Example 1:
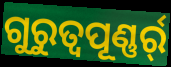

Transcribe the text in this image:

ଗୁରୁତ୍ୱପୂଣ୍ଣର୍ର୍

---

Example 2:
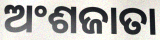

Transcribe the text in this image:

ଅଂଶଜାତା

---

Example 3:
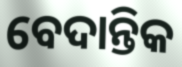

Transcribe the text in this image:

ବେଦାନ୍ତିକ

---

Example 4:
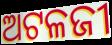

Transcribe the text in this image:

ଅଟଳଜୀ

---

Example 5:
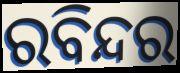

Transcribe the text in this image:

ରବିନ୍ଦର